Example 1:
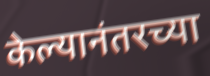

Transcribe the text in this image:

केल्यानंतरच्या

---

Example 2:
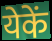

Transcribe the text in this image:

येकें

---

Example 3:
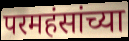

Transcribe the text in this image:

परमहंसांच्या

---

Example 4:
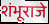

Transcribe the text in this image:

शंभूराजे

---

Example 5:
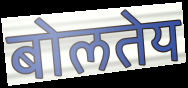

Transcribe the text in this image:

बोलतेय